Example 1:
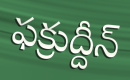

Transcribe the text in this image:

ఫక్రుద్దీన్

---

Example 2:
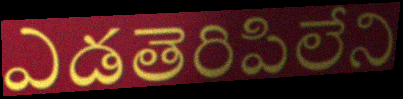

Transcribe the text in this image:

ఎడతెరిపిలేని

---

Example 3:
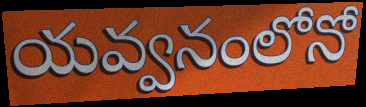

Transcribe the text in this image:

యవ్వనంలోనో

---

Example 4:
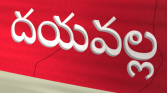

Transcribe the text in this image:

దయవల్ల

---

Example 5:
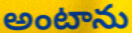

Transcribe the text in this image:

అంటాను